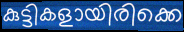
കുട്ടികളായിരിക്കെ